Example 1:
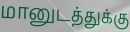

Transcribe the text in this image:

மானுடத்துக்கு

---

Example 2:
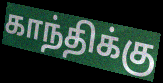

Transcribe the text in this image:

காந்திக்கு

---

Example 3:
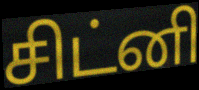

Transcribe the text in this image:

சிட்னி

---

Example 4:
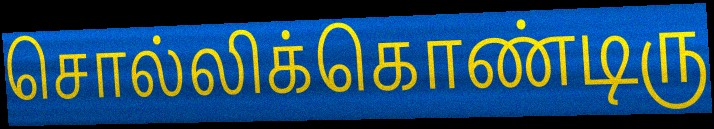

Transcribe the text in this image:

சொல்லிக்கொண்டிரு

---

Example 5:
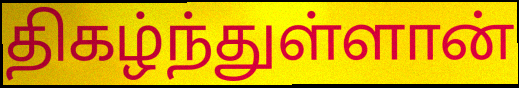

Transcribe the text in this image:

திகழ்ந்துள்ளான்